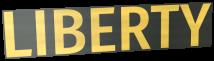
LIBERTY